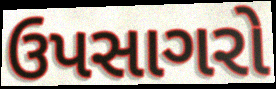
ઉપસાગરો